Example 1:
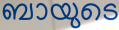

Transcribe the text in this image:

ബായുടെ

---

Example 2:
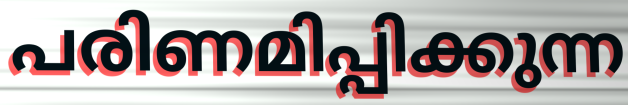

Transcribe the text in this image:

പരിണമിപ്പിക്കുന്ന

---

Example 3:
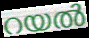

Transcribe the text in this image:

റയൽ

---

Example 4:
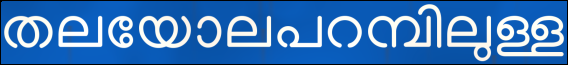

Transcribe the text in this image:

തലയോലപറമ്പിലുള്ള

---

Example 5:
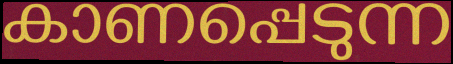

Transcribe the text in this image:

കാണപ്പെടുന്ന